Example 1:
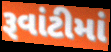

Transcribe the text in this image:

રૂવાંટીમાં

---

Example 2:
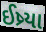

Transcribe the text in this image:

ઈષ્ર્યા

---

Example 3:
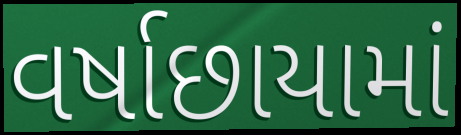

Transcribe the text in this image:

વર્ષાછાયામાં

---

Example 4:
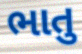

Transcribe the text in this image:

ભાતુ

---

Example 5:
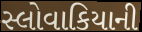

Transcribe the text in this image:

સ્લોવાકિયાની